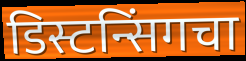
डिस्टन्सिंगचा